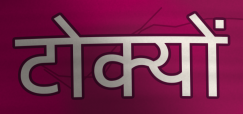
टोक्यों